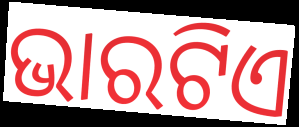
ଭାରଟିଏ